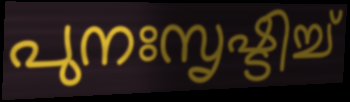
പുനഃസൃഷ്ടിച്ച്